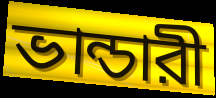
ভান্ডারী